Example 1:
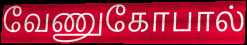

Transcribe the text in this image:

வேணுகோபால்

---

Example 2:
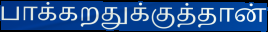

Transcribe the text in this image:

பாக்கறதுக்குத்தான்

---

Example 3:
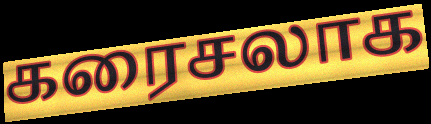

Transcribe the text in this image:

கரைசலாக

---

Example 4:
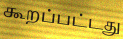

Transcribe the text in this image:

கூறப்பட்டது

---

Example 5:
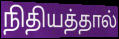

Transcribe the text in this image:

நிதியத்தால்